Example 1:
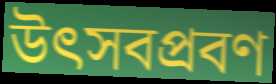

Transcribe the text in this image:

উৎসবপ্রবণ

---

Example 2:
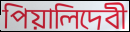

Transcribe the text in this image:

পিয়ালিদেবী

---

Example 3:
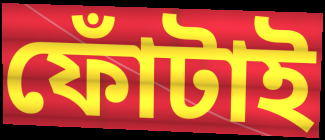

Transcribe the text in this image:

ফোঁটাই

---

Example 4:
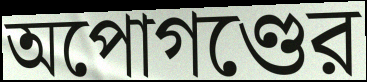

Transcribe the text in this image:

অপোগণ্ডের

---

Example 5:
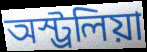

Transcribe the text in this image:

অস্ট্রলিয়া